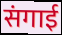
संगाई